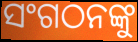
ସଂଗଠନଙ୍କୁ